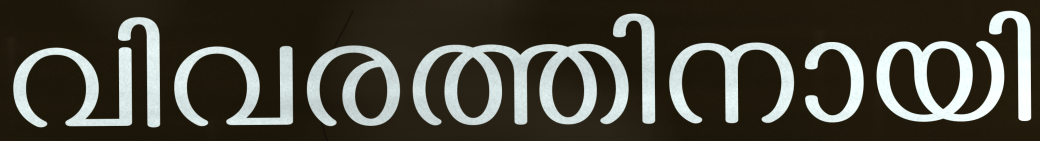
വിവരത്തിനായി